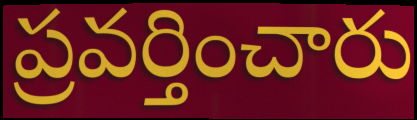
ప్రవర్తించారు